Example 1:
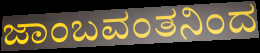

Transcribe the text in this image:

ಜಾಂಬವಂತನಿಂದ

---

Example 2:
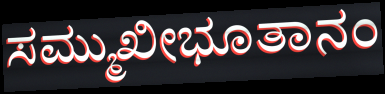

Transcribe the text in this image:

ಸಮ್ಮುಖೀಭೂತಾನಂ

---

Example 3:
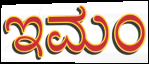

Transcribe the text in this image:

ಇಮಂ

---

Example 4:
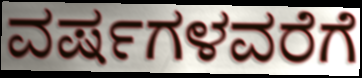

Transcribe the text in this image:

ವರ್ಷಗಳವರೆಗೆ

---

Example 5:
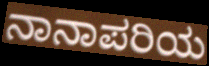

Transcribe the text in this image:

ನಾನಾಪರಿಯ